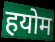
हयोम